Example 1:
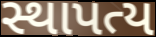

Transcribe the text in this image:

સ્થાપત્ય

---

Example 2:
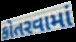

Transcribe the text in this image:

કોતરવામાં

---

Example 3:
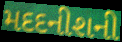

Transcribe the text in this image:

મદદનીશની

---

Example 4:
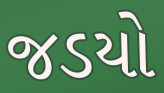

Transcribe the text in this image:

જડયો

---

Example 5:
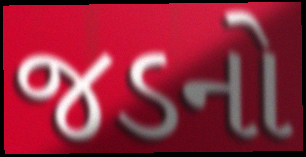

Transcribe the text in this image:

જડનો